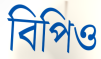
বিপিও